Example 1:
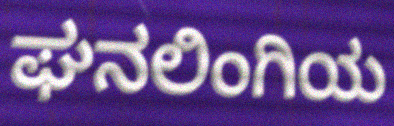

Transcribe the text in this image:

ಘನಲಿಂಗಿಯ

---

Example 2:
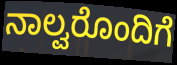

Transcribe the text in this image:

ನಾಲ್ವರೊಂದಿಗೆ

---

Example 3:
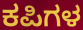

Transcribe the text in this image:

ಕಪಿಗಳ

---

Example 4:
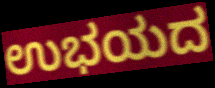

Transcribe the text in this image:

ಉಭಯದ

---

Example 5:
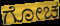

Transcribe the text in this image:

ಗೋಚ